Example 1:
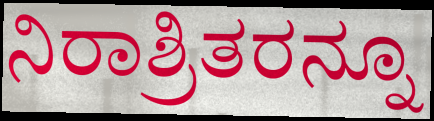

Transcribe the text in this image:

ನಿರಾಶ್ರಿತರನ್ನೂ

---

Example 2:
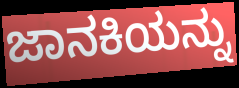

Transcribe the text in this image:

ಜಾನಕಿಯನ್ನು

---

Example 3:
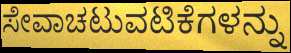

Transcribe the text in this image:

ಸೇವಾಚಟುವಟಿಕೆಗಳನ್ನು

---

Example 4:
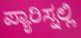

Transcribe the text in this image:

ಪ್ಯಾರಿಸ್ನಲ್ಲಿ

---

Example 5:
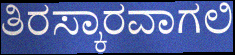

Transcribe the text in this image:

ತಿರಸ್ಕಾರವಾಗಲಿ